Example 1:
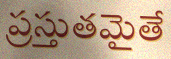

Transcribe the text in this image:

ప్రస్తుతమైతే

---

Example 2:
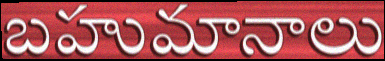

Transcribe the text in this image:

బహుమానాలు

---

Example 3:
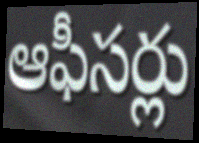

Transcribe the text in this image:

ఆఫీసర్లు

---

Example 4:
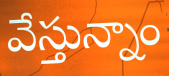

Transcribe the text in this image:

వేస్తున్నాం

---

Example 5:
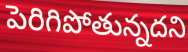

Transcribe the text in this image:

పెరిగిపోతున్నదని